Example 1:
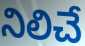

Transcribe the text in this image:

నిలిచే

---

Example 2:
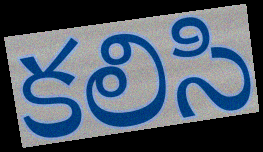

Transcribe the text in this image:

కలిసి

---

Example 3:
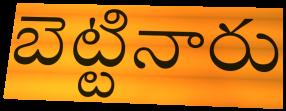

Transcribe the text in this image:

బెట్టినారు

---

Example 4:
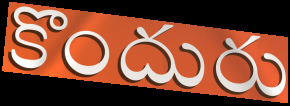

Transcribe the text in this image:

కొందురు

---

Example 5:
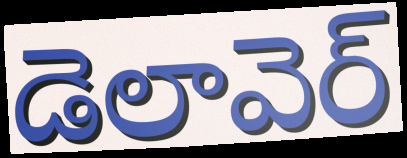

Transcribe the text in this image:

డెలావెర్